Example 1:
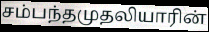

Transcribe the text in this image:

சம்பந்தமுதலியாரின்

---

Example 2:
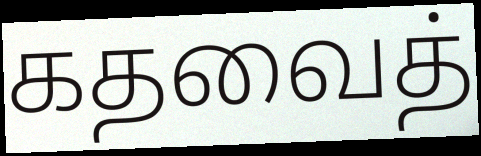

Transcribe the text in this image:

கதவைத்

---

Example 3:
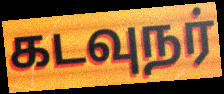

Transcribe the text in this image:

கடவுநர்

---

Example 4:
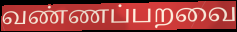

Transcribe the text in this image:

வண்ணப்பறவை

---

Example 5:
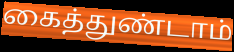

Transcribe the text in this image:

கைத்துண்டாம்